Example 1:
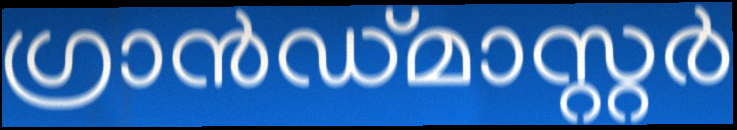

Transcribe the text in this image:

ഗ്രാൻഡ്മാസ്റ്റർ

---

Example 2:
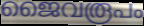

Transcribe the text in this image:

ജൈവരൂപം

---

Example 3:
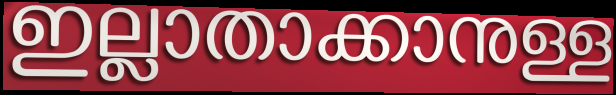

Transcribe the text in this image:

ഇല്ലാതാക്കാനുള്ള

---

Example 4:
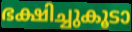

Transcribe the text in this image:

ഭക്ഷിച്ചുകൂടാ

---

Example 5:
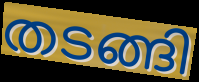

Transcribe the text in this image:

തടങ്ങി